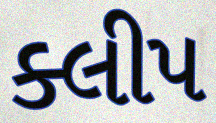
ક્લીપ